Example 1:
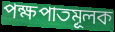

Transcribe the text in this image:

পক্ষপাতমূলক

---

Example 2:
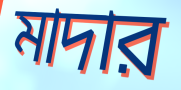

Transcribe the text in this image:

মাদার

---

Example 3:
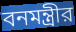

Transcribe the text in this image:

বনমন্ত্রীর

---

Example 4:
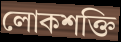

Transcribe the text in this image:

লোকশক্তি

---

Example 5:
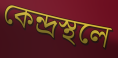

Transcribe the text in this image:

কেন্দ্রস্থলে